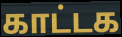
காட்டக